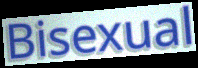
Bisexual